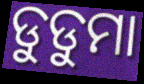
ଡୁଡୁମା